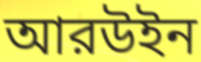
আরউইন